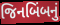
જિનબિંબનું